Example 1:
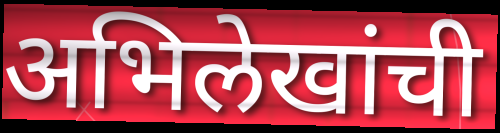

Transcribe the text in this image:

अभिलेखांची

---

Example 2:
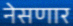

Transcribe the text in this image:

नेसणार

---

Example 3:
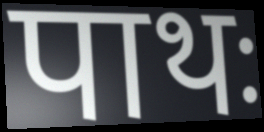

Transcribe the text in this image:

पाथः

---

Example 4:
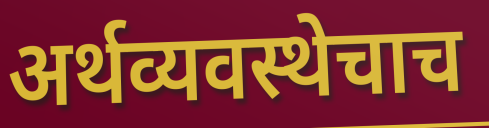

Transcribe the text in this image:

अर्थव्यवस्थेचाच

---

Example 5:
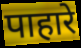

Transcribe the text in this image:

पाहारे